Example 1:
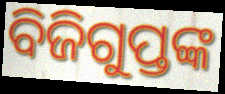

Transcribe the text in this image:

ବିଜିଗୁପ୍ତଙ୍କ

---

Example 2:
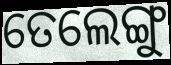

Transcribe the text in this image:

ତେଲେଙ୍ଗୁ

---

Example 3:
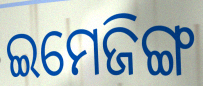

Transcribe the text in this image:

ଇମେଜିଙ୍ଗ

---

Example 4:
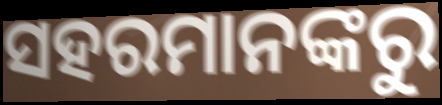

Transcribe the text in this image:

ସହରମାନଙ୍କରୁ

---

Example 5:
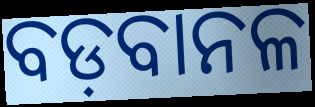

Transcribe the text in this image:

ବଡ଼ବାନଳ